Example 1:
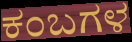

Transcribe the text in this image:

ಕಂಬಗಳ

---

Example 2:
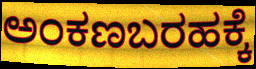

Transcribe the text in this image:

ಅಂಕಣಬರಹಕ್ಕೆ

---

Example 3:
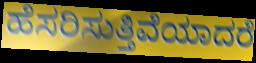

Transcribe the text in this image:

ಹೆಸರಿಸುತ್ತಿವೆಯಾದರೆ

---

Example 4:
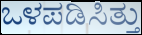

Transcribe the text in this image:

ಒಳಪಡಿಸಿತ್ತು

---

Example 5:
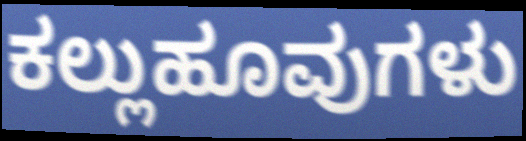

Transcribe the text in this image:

ಕಲ್ಲುಹೂವುಗಳು